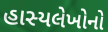
હાસ્યલેખોનો